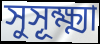
সুসূক্ষ্মা